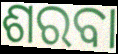
ଶରବା